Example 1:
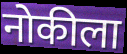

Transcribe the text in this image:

नोकीला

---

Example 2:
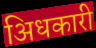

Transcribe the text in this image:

अिधकारी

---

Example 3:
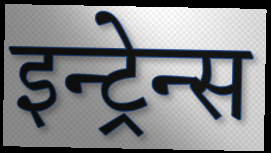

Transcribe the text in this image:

इन्ट्रेन्स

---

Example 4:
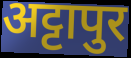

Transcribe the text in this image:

अट्टापुर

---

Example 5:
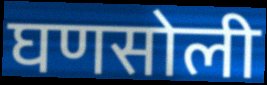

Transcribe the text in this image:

घणसोली